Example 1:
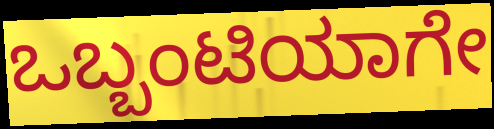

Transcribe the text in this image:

ಒಬ್ಬಂಟಿಯಾಗೇ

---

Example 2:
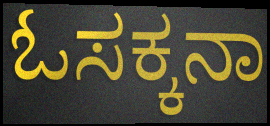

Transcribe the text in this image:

ಓಸಕ್ಕನಾ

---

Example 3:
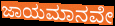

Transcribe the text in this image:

ಜಾಯಮಾನವೇ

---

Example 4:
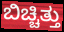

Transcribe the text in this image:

ಬಿಚ್ಚಿತ್ತು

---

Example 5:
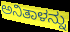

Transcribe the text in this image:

ಅನಿತಾಳನ್ನು